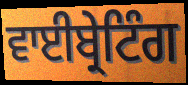
ਵਾਈਬ੍ਰੇਟਿੰਗ